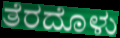
ತೆರದೊಳು